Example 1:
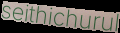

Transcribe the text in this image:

seithichurul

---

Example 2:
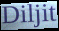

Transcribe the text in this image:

Diljit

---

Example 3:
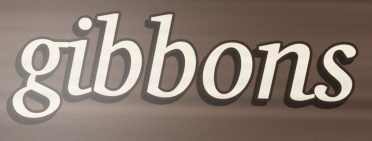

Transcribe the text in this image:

gibbons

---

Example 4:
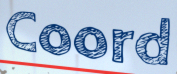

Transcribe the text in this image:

Coord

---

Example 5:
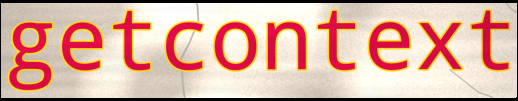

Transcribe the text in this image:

getcontext